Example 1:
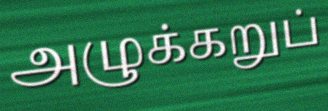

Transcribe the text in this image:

அழுக்கறுப்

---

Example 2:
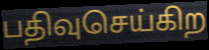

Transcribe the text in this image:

பதிவுசெய்கிற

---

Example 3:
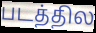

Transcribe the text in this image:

படத்தில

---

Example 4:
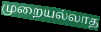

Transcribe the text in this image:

முறையல்லாத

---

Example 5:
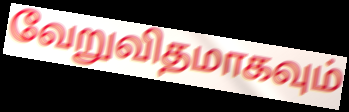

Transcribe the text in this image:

வேறுவிதமாகவும்